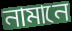
নামানে